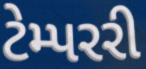
ટેમ્પરરી